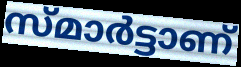
സ്മാർട്ടാണ്